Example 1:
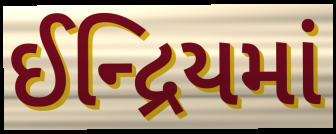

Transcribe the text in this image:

ઈન્દ્રિયમાં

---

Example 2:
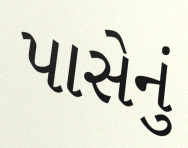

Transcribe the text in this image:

પાસેનું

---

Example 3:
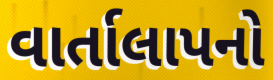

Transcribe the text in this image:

વાર્તાલાપનો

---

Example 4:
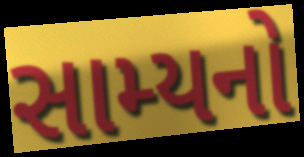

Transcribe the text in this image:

સામ્યનો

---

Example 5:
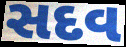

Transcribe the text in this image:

સદવ